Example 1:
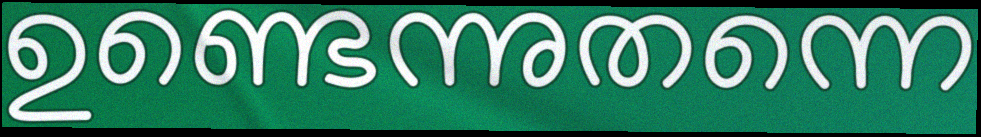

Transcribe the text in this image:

ഉണ്ടെന്നുതന്നെ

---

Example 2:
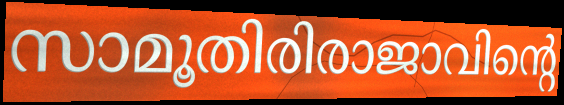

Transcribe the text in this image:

സാമൂതിരിരാജാവിന്റെ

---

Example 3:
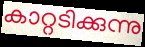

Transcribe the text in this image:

കാറ്റടിക്കുന്നു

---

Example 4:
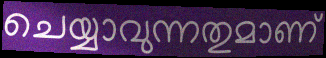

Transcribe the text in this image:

ചെയ്യാവുന്നതുമാണ്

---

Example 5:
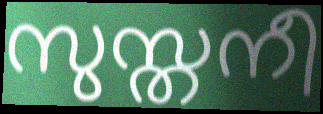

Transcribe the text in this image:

സുസ്തനീ